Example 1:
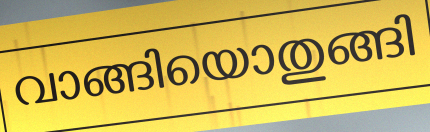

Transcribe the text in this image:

വാങ്ങിയൊതുങ്ങി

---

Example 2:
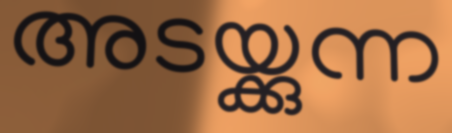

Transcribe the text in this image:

അടയ്ക്കുന്ന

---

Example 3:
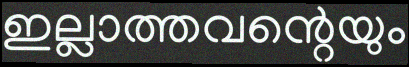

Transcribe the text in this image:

ഇല്ലാത്തവന്റെയും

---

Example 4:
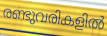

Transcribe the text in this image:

രണ്ടുവരികളിൽ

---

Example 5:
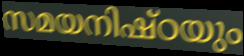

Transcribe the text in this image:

സമയനിഷ്ഠയും